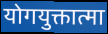
योगयुक्तात्मा